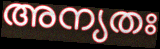
അന്യതഃ